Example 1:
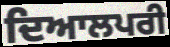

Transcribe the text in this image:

ਦਿਆਲਪਰੀ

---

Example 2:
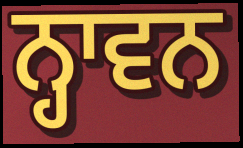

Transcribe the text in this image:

ਨ੍ਹਾਵਨ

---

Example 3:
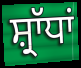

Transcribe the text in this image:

ਸ਼੍ਰਾੱਧਾਂ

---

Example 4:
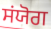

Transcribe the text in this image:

ਸਂਯੋਗ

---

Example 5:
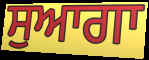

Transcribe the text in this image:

ਸੁਆਗਾ